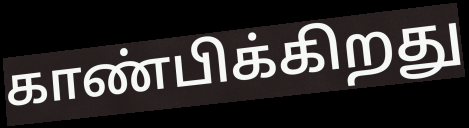
காண்பிக்கிறது